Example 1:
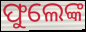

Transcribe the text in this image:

ଫୁଲେଙ୍କ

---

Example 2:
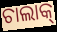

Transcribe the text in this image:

ଚାଲାକ୍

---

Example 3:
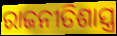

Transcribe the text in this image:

ରାଜନୀତିଶାସ୍ତ୍ର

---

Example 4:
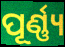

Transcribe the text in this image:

ପୂର୍ଣ୍ଣ୍ୟ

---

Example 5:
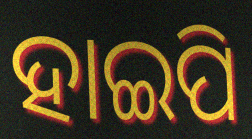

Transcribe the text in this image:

ହାଇପି